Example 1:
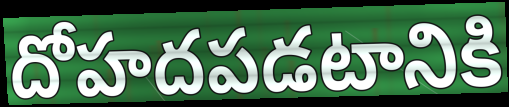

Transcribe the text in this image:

దోహదపడటానికి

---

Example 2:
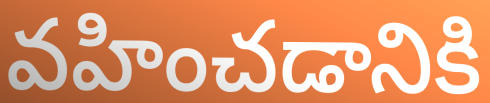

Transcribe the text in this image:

వహించడానికి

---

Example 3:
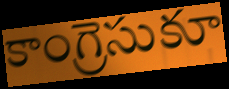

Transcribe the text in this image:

కాంగ్రెసుకూ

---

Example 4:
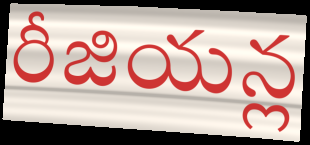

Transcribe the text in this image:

రీజియన్ల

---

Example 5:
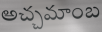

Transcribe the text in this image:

అచ్చమాంబ